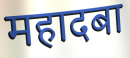
महादबा